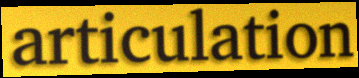
articulation